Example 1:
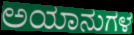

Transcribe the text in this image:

ಅಯಾನುಗಳ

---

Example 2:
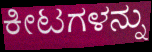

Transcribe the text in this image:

ಕೀಟಗಳನ್ನು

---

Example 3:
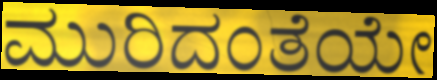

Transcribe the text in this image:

ಮುರಿದಂತೆಯೇ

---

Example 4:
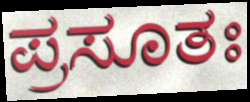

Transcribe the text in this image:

ಪ್ರಸೂತಃ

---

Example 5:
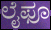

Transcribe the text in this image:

ಲೈಫೂ